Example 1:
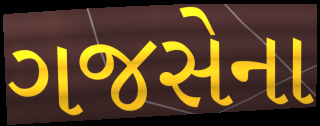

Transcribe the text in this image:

ગજસેના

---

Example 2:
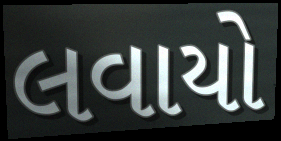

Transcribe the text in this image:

લવાયો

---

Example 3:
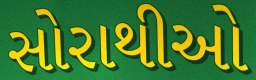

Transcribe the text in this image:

સોરાથીઓ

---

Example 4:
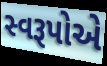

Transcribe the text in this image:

સ્વરૂપોએ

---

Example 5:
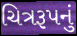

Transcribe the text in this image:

ચિત્રરૂપનું